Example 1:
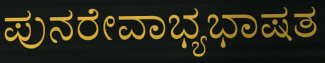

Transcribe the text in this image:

ಪುನರೇವಾಭ್ಯಭಾಷತ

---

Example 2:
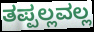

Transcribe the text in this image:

ತಪ್ಪಲ್ಲವಲ್ಲ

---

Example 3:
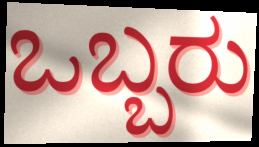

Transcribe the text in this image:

ಒಬ್ಬರು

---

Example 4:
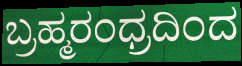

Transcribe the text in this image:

ಬ್ರಹ್ಮರಂಧ್ರದಿಂದ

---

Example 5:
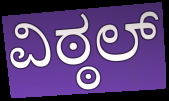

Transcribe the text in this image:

ವಿಠ್ಠಲ್